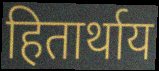
हितार्थाय